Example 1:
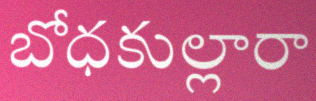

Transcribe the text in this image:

బోధకుల్లారా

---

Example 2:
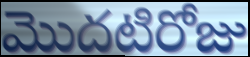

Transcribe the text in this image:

మొదటిరోజు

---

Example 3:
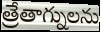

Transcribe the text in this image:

త్రేతాగ్నులను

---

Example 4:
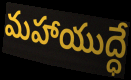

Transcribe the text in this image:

మహాయుద్ధే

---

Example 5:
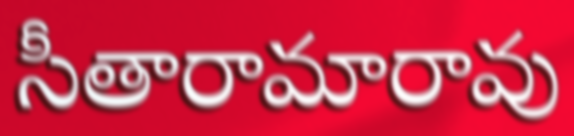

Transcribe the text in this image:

సీతారామారావు